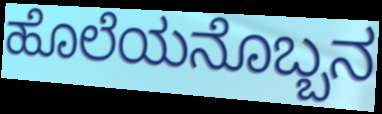
ಹೊಲೆಯನೊಬ್ಬನ